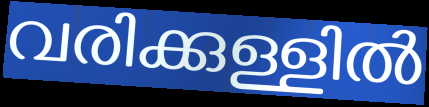
വരിക്കുള്ളിൽ